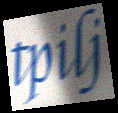
tpilj